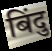
बिंदु